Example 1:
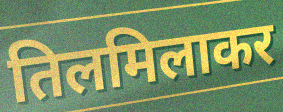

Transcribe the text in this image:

तिलमिलाकर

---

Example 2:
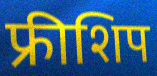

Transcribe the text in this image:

फ्रीशिप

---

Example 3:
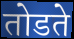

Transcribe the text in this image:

तोडते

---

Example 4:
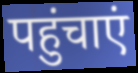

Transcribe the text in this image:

पहुंचाएं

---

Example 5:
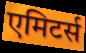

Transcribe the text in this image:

एमिटर्स